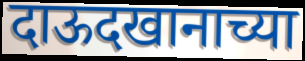
दाऊदखानाच्या